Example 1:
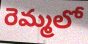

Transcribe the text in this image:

రెమ్మలో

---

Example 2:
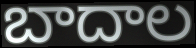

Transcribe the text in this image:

బాదాల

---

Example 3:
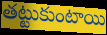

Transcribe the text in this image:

తట్టుకుంటాయి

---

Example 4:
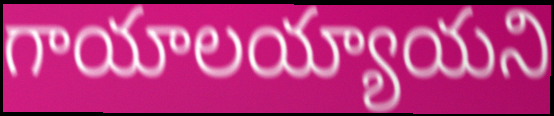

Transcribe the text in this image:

గాయాలయ్యాయని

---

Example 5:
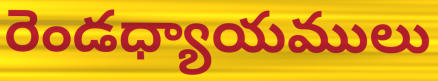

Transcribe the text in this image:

రెండధ్యాయములు